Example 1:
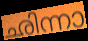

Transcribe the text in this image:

ഛിന്നാ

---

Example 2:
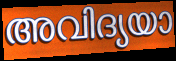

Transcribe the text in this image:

അവിദ്യയാ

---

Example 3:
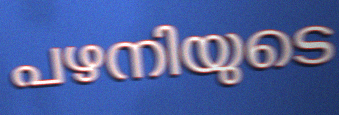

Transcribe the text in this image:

പഴനിയുടെ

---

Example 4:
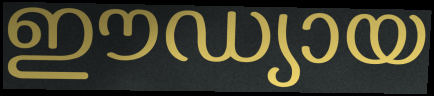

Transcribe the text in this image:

ഈഡ്യായ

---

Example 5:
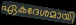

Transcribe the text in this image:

ഏകദേശമായി